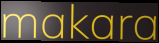
makara